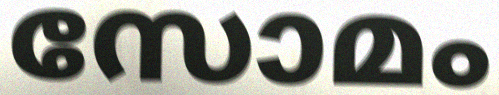
സോമം